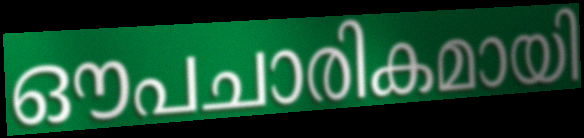
ഔപചാരികമായി